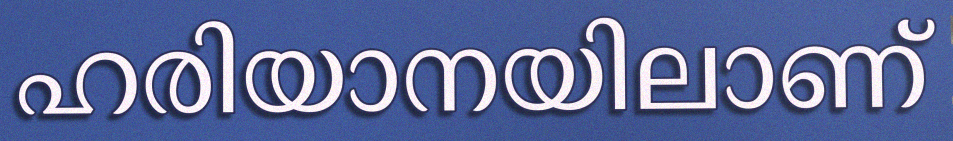
ഹരിയാനയിലാണ്